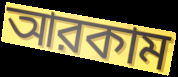
আরকাম